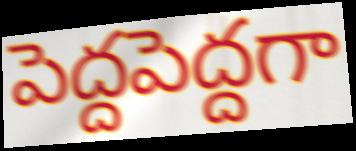
పెద్దపెద్దగా